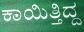
ಕಾಯಿತ್ತಿದ್ದ